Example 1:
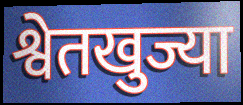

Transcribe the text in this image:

श्वेतखुज्या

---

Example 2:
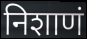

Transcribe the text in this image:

निशाणं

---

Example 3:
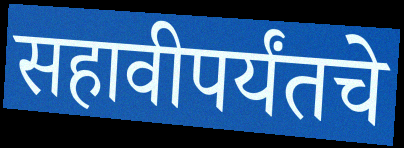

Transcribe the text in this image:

सहावीपर्यंतचे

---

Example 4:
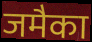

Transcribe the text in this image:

जमैका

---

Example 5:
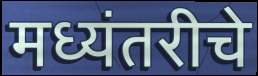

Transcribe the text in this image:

मध्यंतरीचे